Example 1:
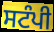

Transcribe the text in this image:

ਸਟੰਪੀ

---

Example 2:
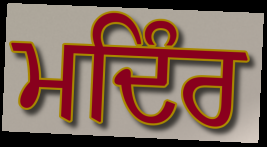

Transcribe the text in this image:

ਮਦਿੰਰ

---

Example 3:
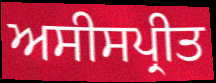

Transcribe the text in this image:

ਅਸੀਸਪ੍ਰੀਤ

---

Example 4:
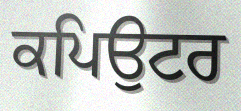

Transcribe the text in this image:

ਕਪਿਉਟਰ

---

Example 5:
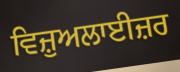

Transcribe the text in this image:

ਵਿਜ਼ੁਅਲਾਈਜ਼ਰ